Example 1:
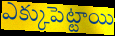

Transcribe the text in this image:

ఎక్కుపెట్టాయి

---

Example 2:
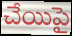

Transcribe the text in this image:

చేయిపై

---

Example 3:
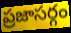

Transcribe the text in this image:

ప్రజాసర్గం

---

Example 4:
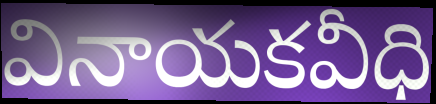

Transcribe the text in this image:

వినాయకవీధి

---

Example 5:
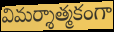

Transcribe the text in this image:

విమర్శాత్మకంగా